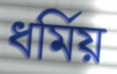
ধর্মিয়